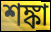
শঙ্কা